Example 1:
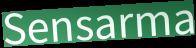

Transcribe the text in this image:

Sensarma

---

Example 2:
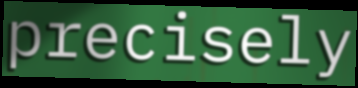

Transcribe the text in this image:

precisely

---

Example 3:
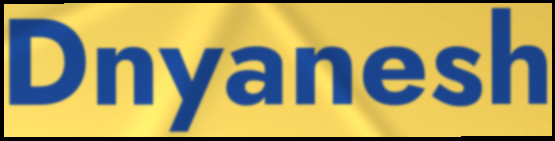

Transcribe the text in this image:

Dnyanesh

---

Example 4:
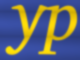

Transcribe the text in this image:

yp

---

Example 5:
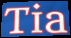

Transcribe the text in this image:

Tia